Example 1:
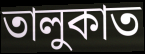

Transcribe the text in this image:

তালুকাত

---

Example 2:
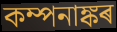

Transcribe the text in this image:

কম্পনাঙ্কৰ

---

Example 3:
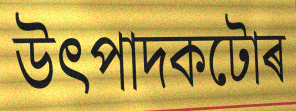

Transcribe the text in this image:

উৎপাদকটোৰ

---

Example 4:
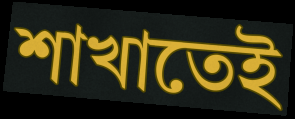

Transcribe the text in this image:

শাখাতেই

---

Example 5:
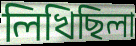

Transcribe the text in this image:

লিখিছিলা